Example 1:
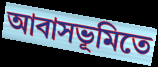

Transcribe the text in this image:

আবাসভূমিতে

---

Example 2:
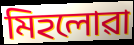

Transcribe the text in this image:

মিহলোৱা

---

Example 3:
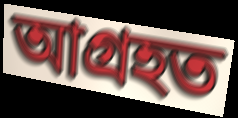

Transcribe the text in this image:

আগ্ৰহত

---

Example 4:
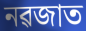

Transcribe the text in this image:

নৱজাত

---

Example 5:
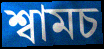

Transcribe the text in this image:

শ্বামচ